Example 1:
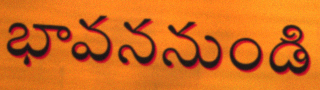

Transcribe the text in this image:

భావననుండి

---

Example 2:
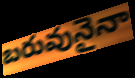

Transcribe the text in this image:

బరువునైనా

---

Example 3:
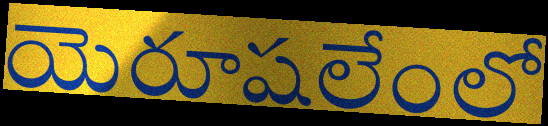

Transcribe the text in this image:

యెరూషలేంలో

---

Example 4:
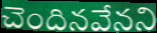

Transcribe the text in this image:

చెందినవేనని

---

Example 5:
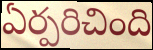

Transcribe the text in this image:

ఏర్పరిచింది